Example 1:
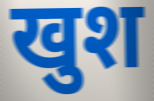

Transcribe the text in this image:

खुश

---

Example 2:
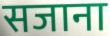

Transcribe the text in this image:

सजाना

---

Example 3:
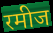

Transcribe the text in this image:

रमीज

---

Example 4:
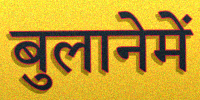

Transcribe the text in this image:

बुलानेमें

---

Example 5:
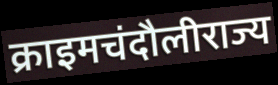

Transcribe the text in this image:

क्राइमचंदौलीराज्य